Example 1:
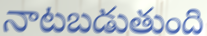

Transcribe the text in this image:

నాటబడుతుంది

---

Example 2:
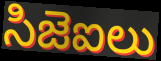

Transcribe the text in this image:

సిజెఐలు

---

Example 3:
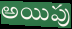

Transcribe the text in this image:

అయిపు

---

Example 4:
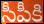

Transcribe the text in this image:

సీపీకి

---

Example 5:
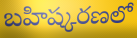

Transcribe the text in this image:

బహిష్కరణలో